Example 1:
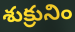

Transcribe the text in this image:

శుక్రునిం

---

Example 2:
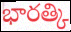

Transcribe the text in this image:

భారత్కి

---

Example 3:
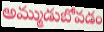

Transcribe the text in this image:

అమ్ముడుబోవడం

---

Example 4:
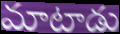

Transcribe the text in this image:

మాటాడు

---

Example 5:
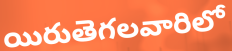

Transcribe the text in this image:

యిరుతెగలవారిలో